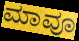
ಮಾವೂ